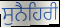
ਸੁਨੈਹਿਰੀ